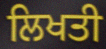
ਲਿਖਤੀ